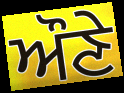
ਔਣੇ